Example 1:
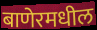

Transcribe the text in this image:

बाणेरमधील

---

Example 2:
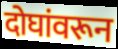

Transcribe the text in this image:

दोघांवरून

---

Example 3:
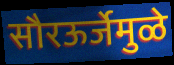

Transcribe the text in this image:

सौरऊर्जेमुळे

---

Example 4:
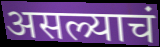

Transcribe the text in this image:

असल्याचं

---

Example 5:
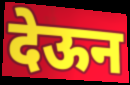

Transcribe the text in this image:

देऊन